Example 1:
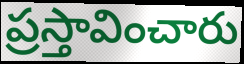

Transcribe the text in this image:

ప్రస్తావించారు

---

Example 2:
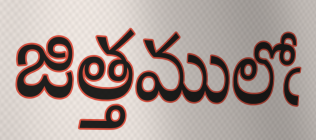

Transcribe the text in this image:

జిత్తములోఁ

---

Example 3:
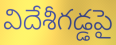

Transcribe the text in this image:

విదేశీగడ్డపై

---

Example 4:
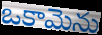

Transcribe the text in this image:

ఒకామెను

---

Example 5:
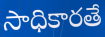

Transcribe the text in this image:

సాధికారతే